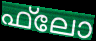
ഫ്‌ലോ